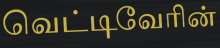
வெட்டிவேரின்